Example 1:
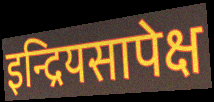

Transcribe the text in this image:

इन्द्रियसापेक्ष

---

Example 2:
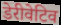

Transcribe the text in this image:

डेरीवेटिव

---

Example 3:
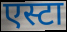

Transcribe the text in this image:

एस्टा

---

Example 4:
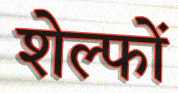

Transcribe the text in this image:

शेल्फों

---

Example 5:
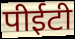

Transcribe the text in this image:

पीईटी